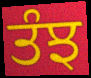
ਤੰਝ